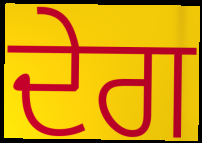
ਦੇਗ